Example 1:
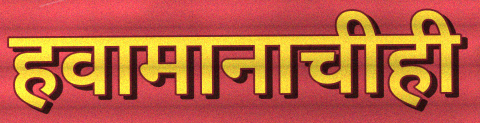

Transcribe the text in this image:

हवामानाचीही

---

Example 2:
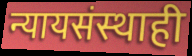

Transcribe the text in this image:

न्यायसंस्थाही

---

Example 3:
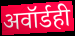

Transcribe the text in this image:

अवॉर्डही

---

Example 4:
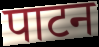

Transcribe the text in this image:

पाटन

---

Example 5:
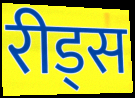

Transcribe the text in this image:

रीड्स